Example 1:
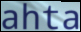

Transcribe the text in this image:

ahta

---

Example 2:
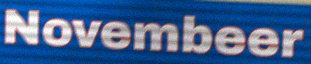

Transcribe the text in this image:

Novembeer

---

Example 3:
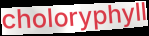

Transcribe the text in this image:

choloryphyll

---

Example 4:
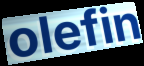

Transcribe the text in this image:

olefin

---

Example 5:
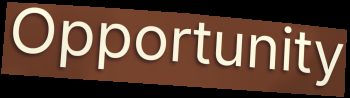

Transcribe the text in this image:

Opportunity